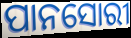
ପାନସୋରୀ